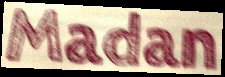
Madan